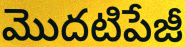
మొదటిపేజీ